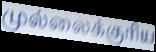
முல்லைக்குரிய